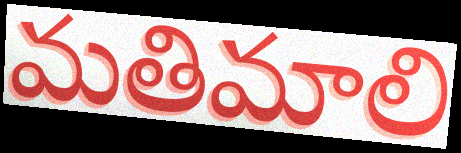
మతిమాలి